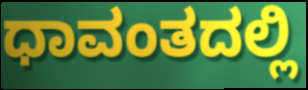
ಧಾವಂತದಲ್ಲಿ